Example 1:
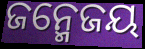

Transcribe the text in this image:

ଜନ୍ମେଜୟ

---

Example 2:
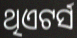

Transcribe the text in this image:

ଥିଏଟର୍ସ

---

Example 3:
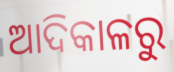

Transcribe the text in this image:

ଆଦିକାଳରୁ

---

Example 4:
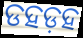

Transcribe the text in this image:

ଡହଡ଼ହ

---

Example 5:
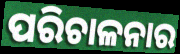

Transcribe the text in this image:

ପରିଚାଳନାର